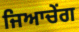
ਜਿਆਚੇਂਗ